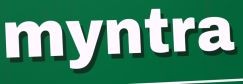
myntra